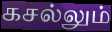
கசல்லும்